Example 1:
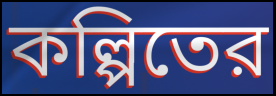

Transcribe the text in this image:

কল্পিতের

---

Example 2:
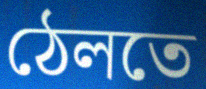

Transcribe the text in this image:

ঠেলতে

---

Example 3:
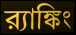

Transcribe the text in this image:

র‍্যাঙ্কিং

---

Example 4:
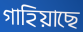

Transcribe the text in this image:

গাহিয়াছে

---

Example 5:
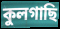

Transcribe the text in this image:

কুলগাছি